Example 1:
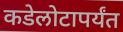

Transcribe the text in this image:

कडेलोटापर्यंत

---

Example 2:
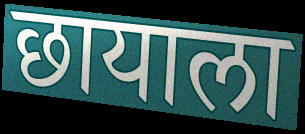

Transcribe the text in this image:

छायाला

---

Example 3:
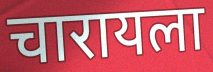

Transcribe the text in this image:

चारायला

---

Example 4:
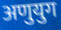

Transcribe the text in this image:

अणुयुग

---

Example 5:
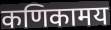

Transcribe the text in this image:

कणिकामय